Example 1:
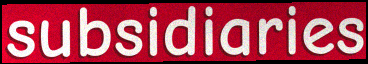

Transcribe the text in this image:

subsidiaries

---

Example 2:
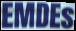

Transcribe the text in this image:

EMDEs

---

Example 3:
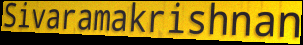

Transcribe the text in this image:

Sivaramakrishnan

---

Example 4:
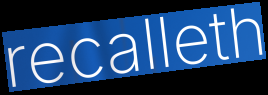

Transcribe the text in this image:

recalleth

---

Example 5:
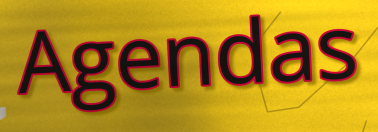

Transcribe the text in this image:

Agendas